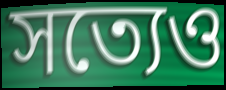
সত্যেও